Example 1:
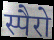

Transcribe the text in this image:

स्पैरो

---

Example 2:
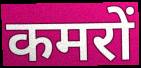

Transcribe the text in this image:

कमरों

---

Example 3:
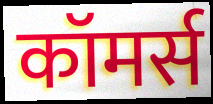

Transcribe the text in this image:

कॉमर्स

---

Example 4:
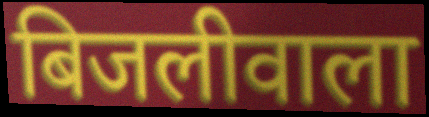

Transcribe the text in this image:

बिजलीवाला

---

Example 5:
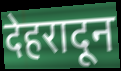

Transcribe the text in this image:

देहरादून